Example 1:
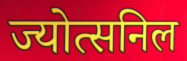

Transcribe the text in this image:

ज्योत्सनिल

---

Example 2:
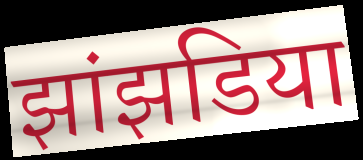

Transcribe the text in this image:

झांझडिया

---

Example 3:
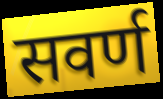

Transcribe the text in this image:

सवर्ण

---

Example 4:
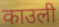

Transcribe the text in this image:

काउली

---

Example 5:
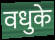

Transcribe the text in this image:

वधुके